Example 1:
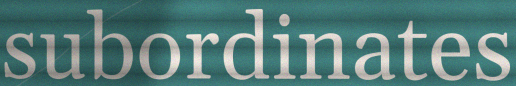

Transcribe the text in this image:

subordinates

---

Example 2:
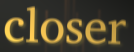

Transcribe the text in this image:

closer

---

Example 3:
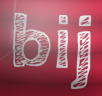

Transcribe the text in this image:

bij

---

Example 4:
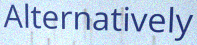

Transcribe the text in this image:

Alternatively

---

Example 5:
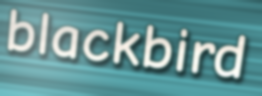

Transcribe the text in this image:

blackbird